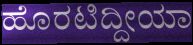
ಹೊರಟಿದ್ದೀಯಾ